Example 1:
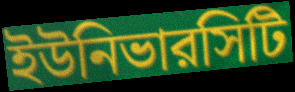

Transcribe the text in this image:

ইউনিভারসিটি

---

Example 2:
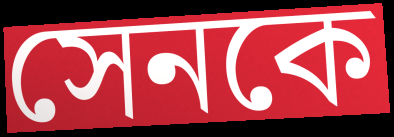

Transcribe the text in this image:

সেনকে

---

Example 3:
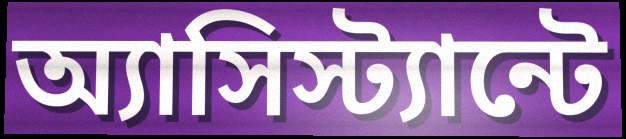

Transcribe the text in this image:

অ্যাসিস্ট্যান্টে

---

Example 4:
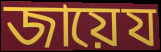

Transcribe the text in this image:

জায়েয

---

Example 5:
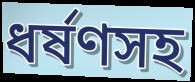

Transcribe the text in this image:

ধর্ষণসহ